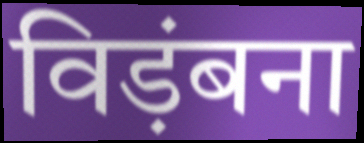
विड़ंबना